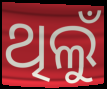
ଥିଲୁଁ